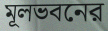
মূলভবনের